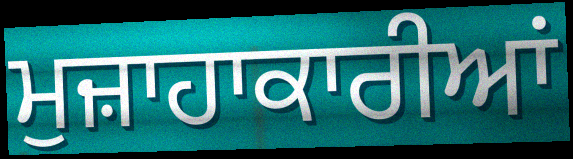
ਮੁਜ਼ਾਹਾਕਾਰੀਆਂ